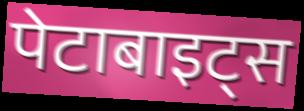
पेटाबाइट्स